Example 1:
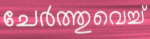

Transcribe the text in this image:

ചേർത്തുവെച്ച്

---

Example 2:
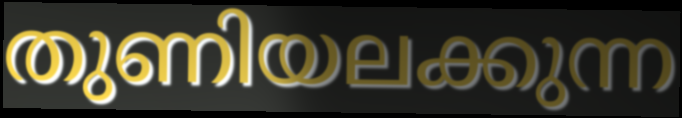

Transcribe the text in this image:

തുണിയലക്കുന്ന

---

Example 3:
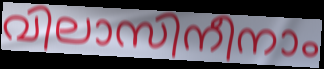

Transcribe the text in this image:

വിലാസിനീനാം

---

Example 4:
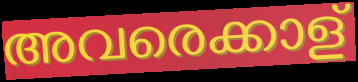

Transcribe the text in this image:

അവരെക്കാള്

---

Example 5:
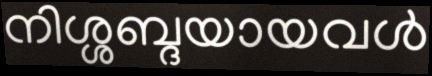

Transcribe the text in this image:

നിശ്ശബ്ദയായവൾ